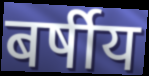
बर्षीय